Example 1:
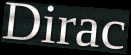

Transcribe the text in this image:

Dirac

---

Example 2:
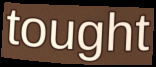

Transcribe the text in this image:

tought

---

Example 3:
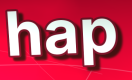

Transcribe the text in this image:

hap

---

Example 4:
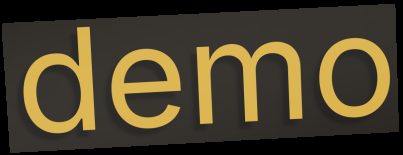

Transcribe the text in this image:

demo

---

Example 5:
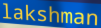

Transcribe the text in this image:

lakshman